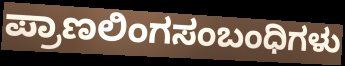
ಪ್ರಾಣಲಿಂಗಸಂಬಂಧಿಗಳು